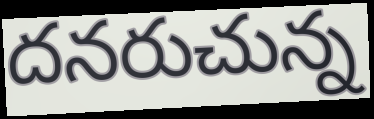
దనరుచున్న